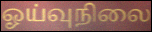
ஓய்வுநிலை